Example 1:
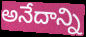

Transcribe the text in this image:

అనేదాన్ని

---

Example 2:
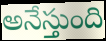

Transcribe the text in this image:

అనేస్తుంది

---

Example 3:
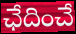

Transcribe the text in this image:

ఛేదించే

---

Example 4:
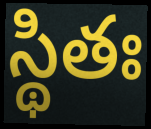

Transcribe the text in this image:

స్థితః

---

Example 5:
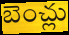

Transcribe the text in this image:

బెంచ్లు